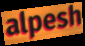
alpesh